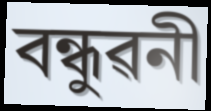
বন্ধুৱনী